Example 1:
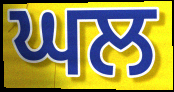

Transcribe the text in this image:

ਘਲ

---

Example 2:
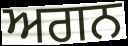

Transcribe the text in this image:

ਅਗਨ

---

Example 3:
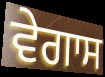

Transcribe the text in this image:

ਵੇਗਾਸ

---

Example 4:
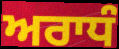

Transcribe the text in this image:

ਅਰਾਧੰ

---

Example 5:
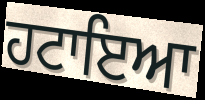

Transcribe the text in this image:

ਹਟਾਇਆ